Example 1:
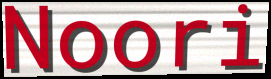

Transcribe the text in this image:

Noori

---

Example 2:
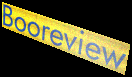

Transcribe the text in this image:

Booreview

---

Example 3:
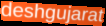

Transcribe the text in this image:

deshgujarat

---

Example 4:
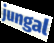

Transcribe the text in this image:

jungal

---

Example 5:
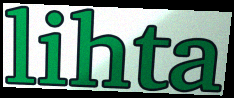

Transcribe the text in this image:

lihta